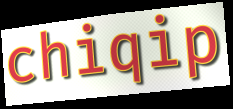
chiqip